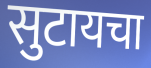
सुटायचा